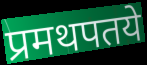
प्रमथपतये